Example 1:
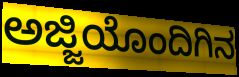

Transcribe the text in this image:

ಅಜ್ಜಿಯೊಂದಿಗಿನ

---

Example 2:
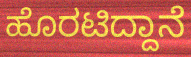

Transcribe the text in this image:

ಹೊರಟಿದ್ದಾನೆ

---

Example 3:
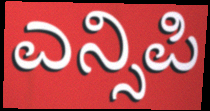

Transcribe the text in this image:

ಎನ್ಸಿಪಿ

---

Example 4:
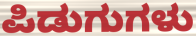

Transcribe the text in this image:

ಪಿಡುಗುಗಳು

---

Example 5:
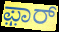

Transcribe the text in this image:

ಫ಼ಾರ್